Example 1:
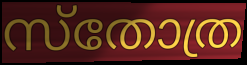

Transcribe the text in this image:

സ്തോത്ര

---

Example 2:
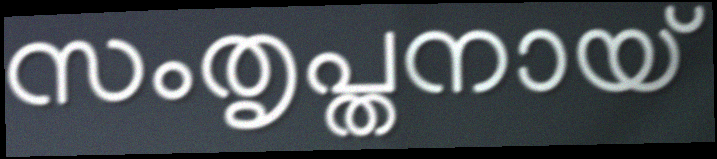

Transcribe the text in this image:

സംതൃപ്തനായ്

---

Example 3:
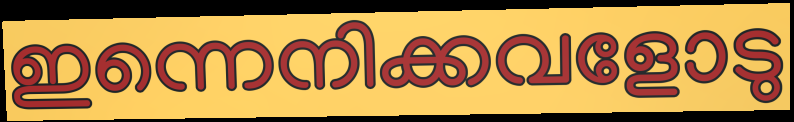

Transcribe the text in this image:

ഇന്നെനിക്കവളോടു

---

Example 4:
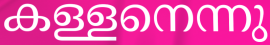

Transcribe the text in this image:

കള്ളനെന്നു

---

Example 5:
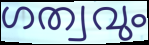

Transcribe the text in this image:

ഗത്വവും